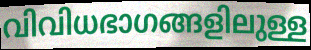
വിവിധഭാഗങ്ങളിലുള്ള